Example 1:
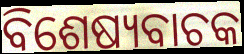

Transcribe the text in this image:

ବିଶେଷ୍ୟବାଚକ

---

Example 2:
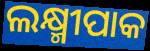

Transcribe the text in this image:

ଲକ୍ଷ୍ମୀପାକ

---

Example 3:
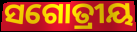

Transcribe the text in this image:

ସଗୋତ୍ରୀୟ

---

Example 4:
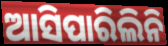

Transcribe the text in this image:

ଆସିପାରିଲିନି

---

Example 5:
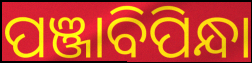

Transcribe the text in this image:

ପଞ୍ଜାବିପିନ୍ଧା